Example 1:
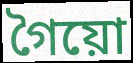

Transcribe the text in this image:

গৈয়ো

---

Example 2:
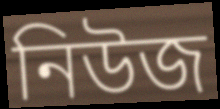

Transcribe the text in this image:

নিউজ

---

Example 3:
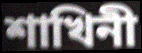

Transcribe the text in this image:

শাখিনী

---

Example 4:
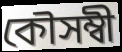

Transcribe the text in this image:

কৌসম্বী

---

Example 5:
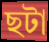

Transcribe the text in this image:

ছটা